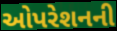
ઓપરેશનની